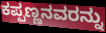
ಕಪ್ಪಣ್ಣನವರನ್ನು